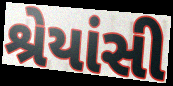
શ્રેયાંસી